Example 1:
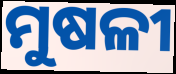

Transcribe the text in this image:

ମୁଷଳୀ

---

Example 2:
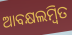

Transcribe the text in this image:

ଆବକ୍ଷଲମ୍ବିତ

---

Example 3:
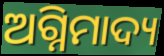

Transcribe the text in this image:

ଅଗ୍ନିମାଦ୍ୟ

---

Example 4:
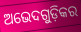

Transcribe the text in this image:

ଅଭେଦଗୁଡ଼ିକର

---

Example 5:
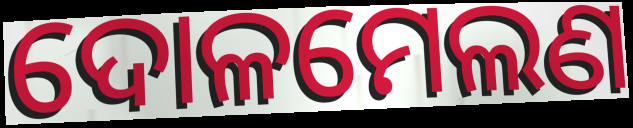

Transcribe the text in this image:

ଦୋଳମେଲଣ